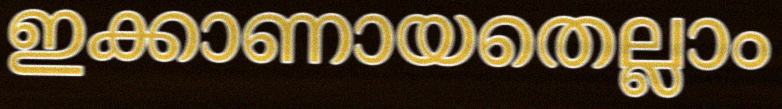
ഇക്കാണായതെല്ലാം